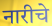
नारीचे